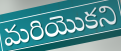
మరియొకని